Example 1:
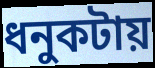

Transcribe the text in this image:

ধনুকটায়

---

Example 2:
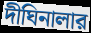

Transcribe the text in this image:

দীঘিনালার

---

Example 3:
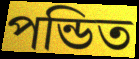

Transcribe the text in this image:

পন্ডিত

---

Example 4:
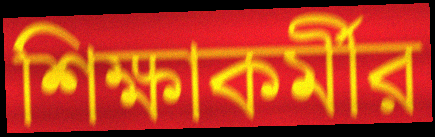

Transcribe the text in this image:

শিক্ষাকর্মীর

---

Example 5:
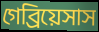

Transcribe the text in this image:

গেব্রিয়েসাস